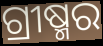
ଗ୍ରୀଷ୍ମର